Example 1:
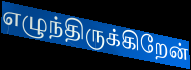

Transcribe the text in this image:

எழுந்திருக்கிறேன்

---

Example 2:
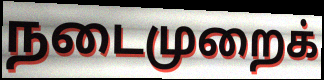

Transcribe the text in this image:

நடைமுறைக்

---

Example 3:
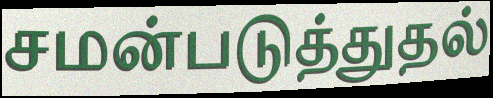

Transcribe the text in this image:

சமன்படுத்துதல்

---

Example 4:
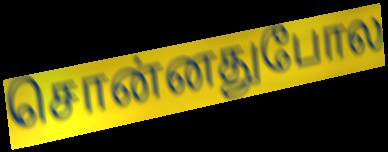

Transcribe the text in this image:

சொன்னதுபோல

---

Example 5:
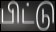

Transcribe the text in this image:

பிட்டு